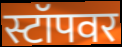
स्टॉपवर